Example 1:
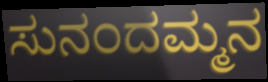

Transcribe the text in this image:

ಸುನಂದಮ್ಮನ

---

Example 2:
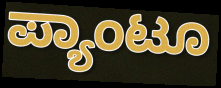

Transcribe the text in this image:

ಪ್ಯಾಂಟೂ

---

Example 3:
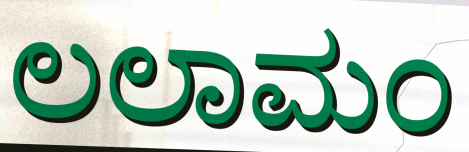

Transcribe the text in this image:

ಲಲಾಮಂ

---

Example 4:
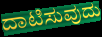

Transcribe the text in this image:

ದಾಟಿಸುವುದು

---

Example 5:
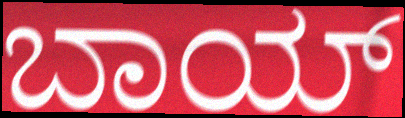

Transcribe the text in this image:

ಬಾಯ್